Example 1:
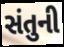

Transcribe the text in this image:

સંતુની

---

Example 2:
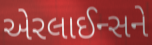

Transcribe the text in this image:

એરલાઈન્સને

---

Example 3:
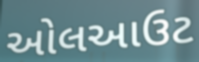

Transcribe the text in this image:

ઓલઆઉટ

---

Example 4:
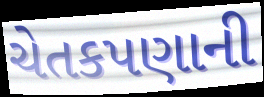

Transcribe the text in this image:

ચેતકપણાની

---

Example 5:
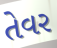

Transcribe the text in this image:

તેવર